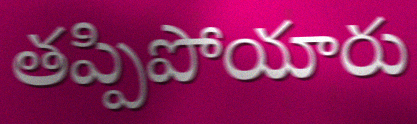
తప్పిపోయారు